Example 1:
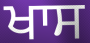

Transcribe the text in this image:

ਖਾਸ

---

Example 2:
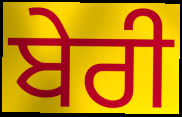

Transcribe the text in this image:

ਬੇਰੀ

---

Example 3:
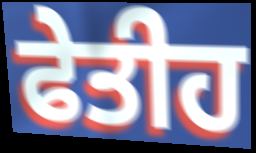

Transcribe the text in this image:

ਫੇਤੀਹ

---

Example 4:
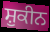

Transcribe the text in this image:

ਸ਼ੁਕੀਨ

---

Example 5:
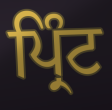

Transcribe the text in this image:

ਪ੍ਰਿੰਟ